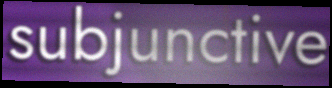
subjunctive